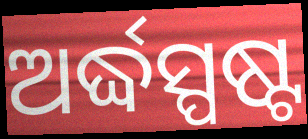
ଅର୍ଦ୍ଧସ୍ପଷ୍ଟ